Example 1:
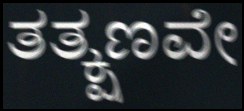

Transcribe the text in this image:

ತತ್ಕ್ಷಣವೇ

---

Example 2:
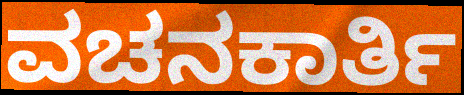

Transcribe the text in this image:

ವಚನಕಾರ್ತಿ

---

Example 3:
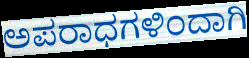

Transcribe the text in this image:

ಅಪರಾಧಗಳಿಂದಾಗಿ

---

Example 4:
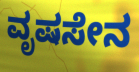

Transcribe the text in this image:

ವೃಷಸೇನ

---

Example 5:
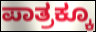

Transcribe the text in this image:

ಪಾತ್ರಕ್ಕೂ